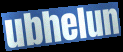
ubhelun